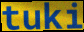
tuki